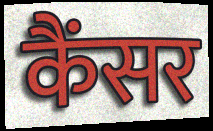
कैंसर